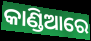
କାଣ୍ଡିଆରେ